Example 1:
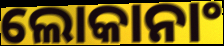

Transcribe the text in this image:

ଲୋକାନାଂ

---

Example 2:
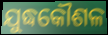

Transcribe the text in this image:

ଯୁଦ୍ଧକୌଶଳ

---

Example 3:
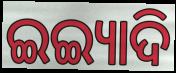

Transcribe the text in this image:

ଇଇ୍ୟାଦି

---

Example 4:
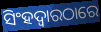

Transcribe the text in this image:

ସିଂହଦ୍ୱାରଠାରେ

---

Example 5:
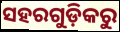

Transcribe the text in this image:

ସହରଗୁଡ଼ିକରୁ